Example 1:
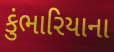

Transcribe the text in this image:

કુંભારિયાના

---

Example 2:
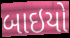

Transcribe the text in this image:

બાઇયો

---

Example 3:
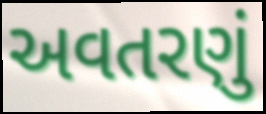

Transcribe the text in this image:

અવતરણું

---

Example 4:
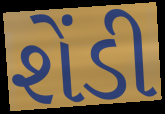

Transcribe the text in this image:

શેંડી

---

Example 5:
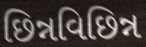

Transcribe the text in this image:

છિન્નવિછિન્ન